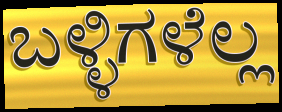
ಬಳ್ಳಿಗಳೆಲ್ಲ